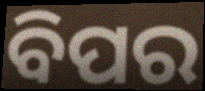
ବିପର